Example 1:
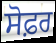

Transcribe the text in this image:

ਸੋਫ਼ਰ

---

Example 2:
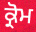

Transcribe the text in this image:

ਕ੍ਰੋਮ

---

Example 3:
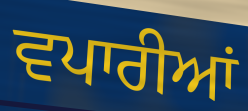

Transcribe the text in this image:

ਵਪਾਰੀਆਂ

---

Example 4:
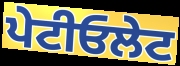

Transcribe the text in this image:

ਪੇਟੀਓਲੇਟ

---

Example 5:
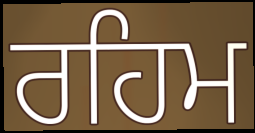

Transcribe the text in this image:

ਰਹਿਮ